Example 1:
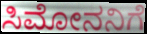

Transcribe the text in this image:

ಸಿಮೋನನಿಗೆ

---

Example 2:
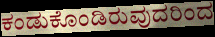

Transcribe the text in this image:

ಕಂಡುಕೊಂಡಿರುವುದರಿಂದ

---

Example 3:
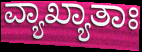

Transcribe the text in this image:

ವ್ಯಾಖ್ಯಾತಾಃ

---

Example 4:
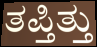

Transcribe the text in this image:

ತಪ್ತಿತ್ತು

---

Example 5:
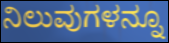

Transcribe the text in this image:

ನಿಲುವುಗಳನ್ನೂ